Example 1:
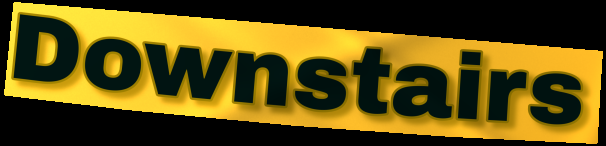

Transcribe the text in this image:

Downstairs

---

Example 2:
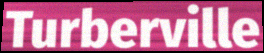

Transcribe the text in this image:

Turberville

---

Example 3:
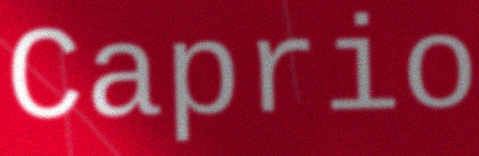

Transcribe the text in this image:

Caprio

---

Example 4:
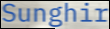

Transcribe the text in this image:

Sunghir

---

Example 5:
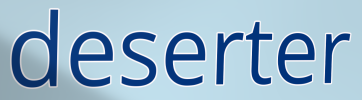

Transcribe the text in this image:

deserter